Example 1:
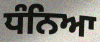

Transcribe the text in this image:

ਧੰਨਿਆ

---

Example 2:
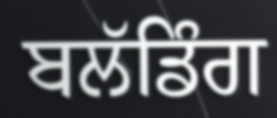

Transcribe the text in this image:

ਬਲੱਡਿੰਗ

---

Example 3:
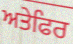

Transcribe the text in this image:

ਅਤੇਫਿਰ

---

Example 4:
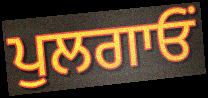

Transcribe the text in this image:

ਪੁਲਗਾਓਂ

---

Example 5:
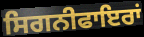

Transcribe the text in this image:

ਸਿਗਨੀਫਾਇਰਾਂ